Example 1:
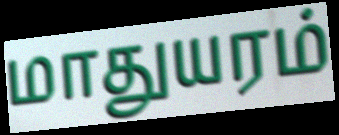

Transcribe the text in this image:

மாதுயரம்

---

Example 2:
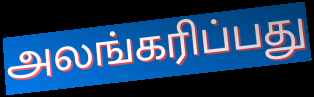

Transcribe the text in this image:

அலங்கரிப்பது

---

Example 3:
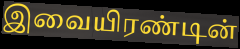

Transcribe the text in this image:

இவையிரண்டின்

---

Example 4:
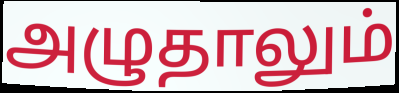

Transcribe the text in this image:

அழுதாலும்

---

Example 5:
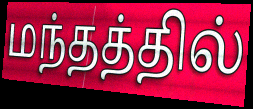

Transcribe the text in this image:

மந்தத்தில்